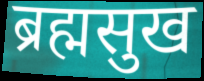
ब्रह्मसुख